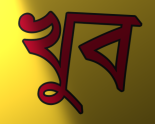
খুব